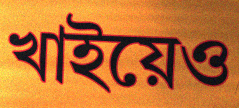
খাইয়েও